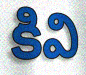
కివి